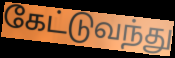
கேட்டுவந்து